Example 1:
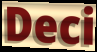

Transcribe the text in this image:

Deci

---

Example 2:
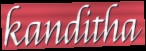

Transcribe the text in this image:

kanditha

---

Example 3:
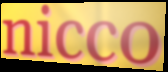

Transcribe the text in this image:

nicco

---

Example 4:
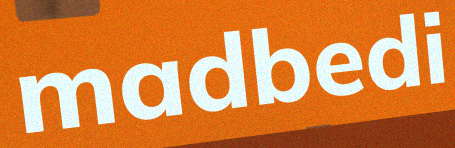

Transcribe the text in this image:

madbedi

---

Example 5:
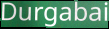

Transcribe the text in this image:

Durgabai